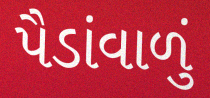
પૈડાંવાળું